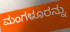
ಮಂಗಳೂರನ್ನು